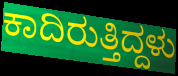
ಕಾದಿರುತ್ತಿದ್ದಳು